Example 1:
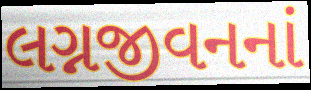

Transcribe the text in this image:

લગ્નજીવનનાં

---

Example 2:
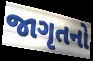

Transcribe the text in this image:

જાગૃતનો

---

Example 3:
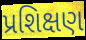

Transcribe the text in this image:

પ્રશિક્ષણ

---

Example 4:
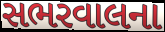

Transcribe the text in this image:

સભરવાલના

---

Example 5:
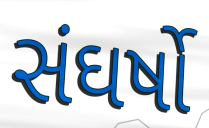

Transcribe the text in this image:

સંઘર્ષો